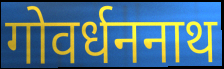
गोवर्धननाथ